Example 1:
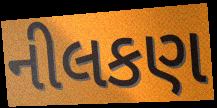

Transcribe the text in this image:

નીલકણ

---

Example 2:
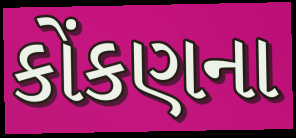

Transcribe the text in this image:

કોંકણના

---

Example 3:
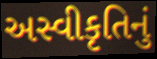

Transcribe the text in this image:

અસ્વીકૃતિનું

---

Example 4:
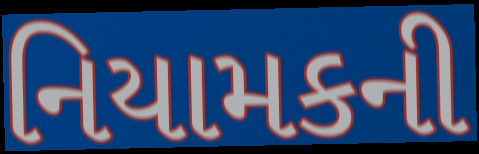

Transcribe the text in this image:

નિયામકની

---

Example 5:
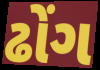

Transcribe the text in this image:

ઢોંગ